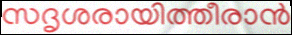
സദൃശരായിത്തീരാൻ